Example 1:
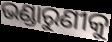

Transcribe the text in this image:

ଭଣ୍ଡାରୁଣୀକୁ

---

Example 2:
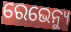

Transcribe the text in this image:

ରେଭେନ୍ୟୁ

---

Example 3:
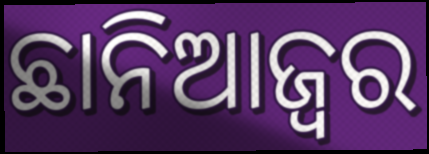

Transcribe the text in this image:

ଛାନିଆଜ୍ୱର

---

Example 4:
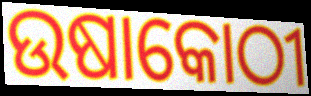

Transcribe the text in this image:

ଉଷାକୋଠୀ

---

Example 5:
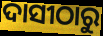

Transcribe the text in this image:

ଦାସୀଠାରୁ